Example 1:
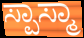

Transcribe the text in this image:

ಸ್ಪಾಸ್ಮಾ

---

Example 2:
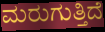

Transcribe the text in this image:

ಮರುಗುತ್ತಿದೆ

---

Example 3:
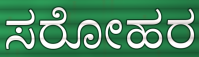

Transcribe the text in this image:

ಸರೋಹರ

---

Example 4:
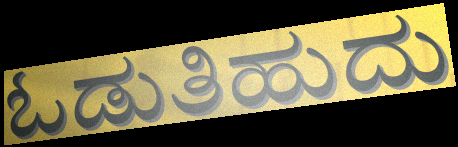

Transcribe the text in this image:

ಓಡುತಿಹುದು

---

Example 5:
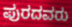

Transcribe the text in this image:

ಪುರದವರು